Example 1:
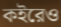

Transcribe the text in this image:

কইরেও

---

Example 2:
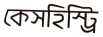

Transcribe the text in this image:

কেসহিস্ট্রি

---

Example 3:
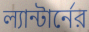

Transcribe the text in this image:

ল্যান্টার্নের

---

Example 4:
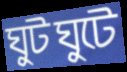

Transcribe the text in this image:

ঘুটঘুটে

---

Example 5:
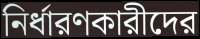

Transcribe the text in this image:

নির্ধারণকারীদের